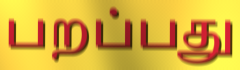
பறப்பது